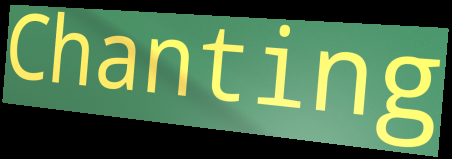
Chanting